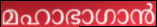
മഹാഭാഗാൻ